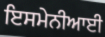
ਇਸਮੇਨੀਆਈ